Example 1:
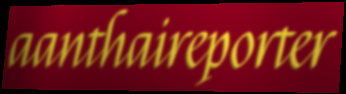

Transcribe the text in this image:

aanthaireporter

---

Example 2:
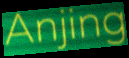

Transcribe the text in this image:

Anjing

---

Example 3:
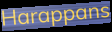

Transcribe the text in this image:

Harappans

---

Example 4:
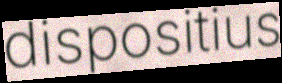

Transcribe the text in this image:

dispositius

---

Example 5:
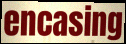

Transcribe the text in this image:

encasing